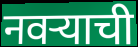
नवर्‍याची